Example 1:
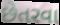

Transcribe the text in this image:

છેતરવા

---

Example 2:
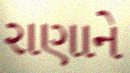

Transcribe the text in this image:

રાણાને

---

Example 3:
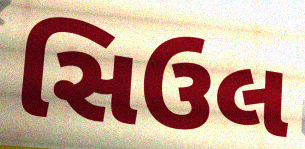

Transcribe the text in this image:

સિઉલ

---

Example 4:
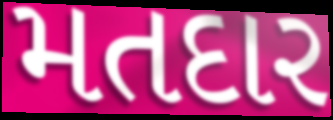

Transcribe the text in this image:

મતદાર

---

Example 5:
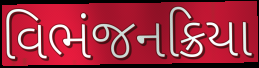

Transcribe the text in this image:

વિભંજનક્રિયા